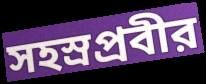
সহস্রপ্রবীর